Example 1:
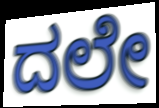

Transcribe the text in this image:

ದಲೇ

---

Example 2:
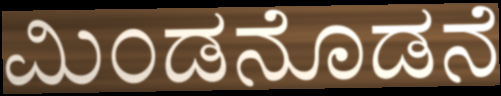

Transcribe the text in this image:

ಮಿಂಡನೊಡನೆ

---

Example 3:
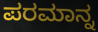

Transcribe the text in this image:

ಪರಮಾನ್ನ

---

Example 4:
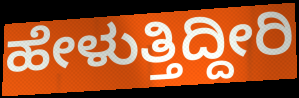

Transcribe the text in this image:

ಹೇಳುತ್ತಿದ್ದೀರಿ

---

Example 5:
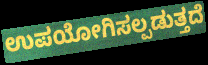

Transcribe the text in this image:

ಉಪಯೋಗಿಸಲ್ಪಡುತ್ತದೆ